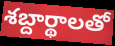
శబ్దార్థాలతో